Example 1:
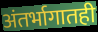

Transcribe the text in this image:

अंतर्भागातही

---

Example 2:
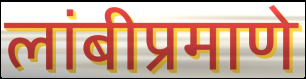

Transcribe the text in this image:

लांबीप्रमाणे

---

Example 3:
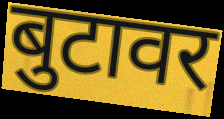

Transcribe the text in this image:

बुटावर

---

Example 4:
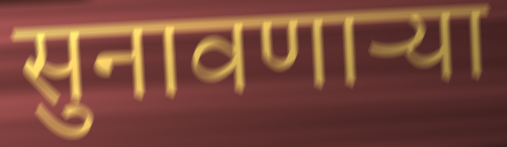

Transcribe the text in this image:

सुनावणाऱ्या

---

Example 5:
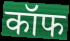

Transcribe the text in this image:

कॉफ